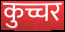
कुच्चर